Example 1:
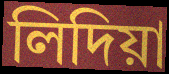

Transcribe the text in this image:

লিদিয়া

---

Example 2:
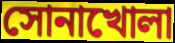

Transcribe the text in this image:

সোনাখোলা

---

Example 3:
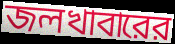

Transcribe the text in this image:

জলখাবারের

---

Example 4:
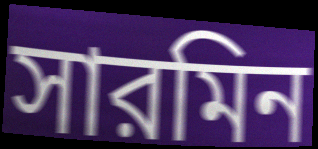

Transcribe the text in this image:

সারমিন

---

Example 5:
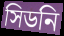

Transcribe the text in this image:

সিডনি